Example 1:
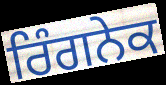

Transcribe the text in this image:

ਰਿੰਗਨੇਕ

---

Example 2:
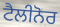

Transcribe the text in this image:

ਟੈਲੀਨੋਰ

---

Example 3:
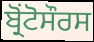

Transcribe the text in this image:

ਬ੍ਰੋਂਟੋਸੌਰਸ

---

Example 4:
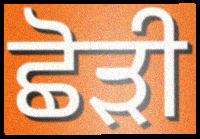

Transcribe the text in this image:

ਛੋੜੀ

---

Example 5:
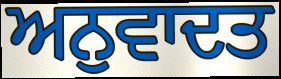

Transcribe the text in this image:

ਅਨੁਵਾਦਤ